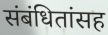
संबंधितांसह